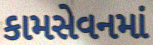
કામસેવનમાં